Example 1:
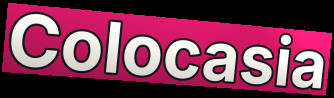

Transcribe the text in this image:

Colocasia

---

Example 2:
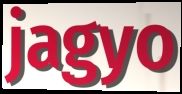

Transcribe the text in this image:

jagyo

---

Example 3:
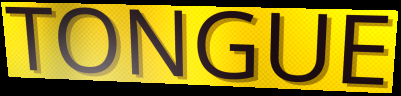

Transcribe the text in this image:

TONGUE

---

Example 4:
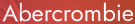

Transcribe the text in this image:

Abercrombie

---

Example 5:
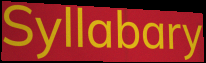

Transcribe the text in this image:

Syllabary